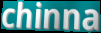
chinna